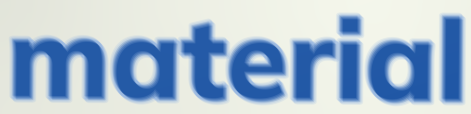
material